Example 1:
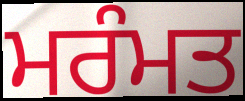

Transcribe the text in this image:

ਮਰੰਮਤ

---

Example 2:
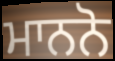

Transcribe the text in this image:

ਮਾਨਨੋ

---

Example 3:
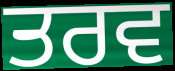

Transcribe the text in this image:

ਤਰਵ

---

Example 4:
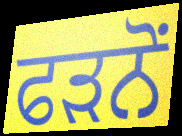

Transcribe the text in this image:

ਫੜਨੋਂ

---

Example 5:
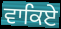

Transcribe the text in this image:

ਵਾਕਿਏ